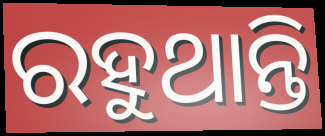
ରହୁଥାନ୍ତି